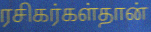
ரசிகர்கள்தான்